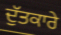
ਦੁੱਤਕਾਰੇ